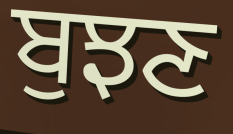
ਬੁਝਣ